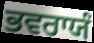
ਭਵਰਾਯੰ